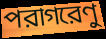
পরাগরেণু